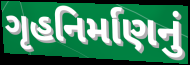
ગૃહનિર્માણનું